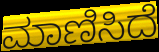
ಮಾಣಿಸಿದೆ